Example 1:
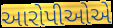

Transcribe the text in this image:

આરોપીઓએ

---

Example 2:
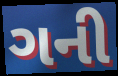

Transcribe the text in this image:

ગની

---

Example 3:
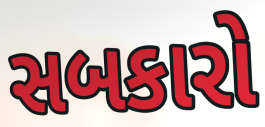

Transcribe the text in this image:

સબકારો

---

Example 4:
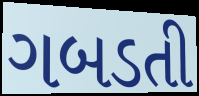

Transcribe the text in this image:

ગબડતી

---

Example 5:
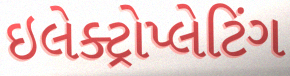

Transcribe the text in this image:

ઇલેક્ટ્રોપ્લેટિંગ